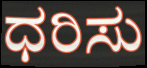
ಧರಿಸು